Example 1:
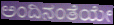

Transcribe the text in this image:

ಅಂದಿನಂತೆಯೇ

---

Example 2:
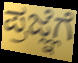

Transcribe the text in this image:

ಪ್ರಜ್ಞೆಗೆ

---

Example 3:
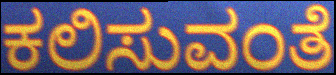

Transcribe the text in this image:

ಕಲಿಸುವಂತೆ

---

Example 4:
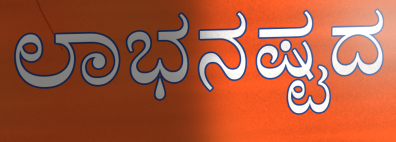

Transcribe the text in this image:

ಲಾಭನಷ್ಟದ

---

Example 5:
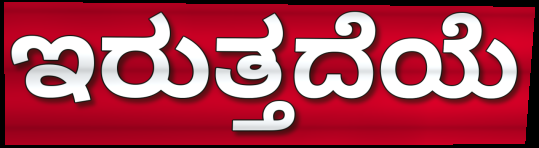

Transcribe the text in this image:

ಇರುತ್ತದೆಯೆ